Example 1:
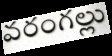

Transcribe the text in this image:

వరంగల్లు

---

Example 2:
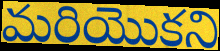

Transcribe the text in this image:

మరియొకని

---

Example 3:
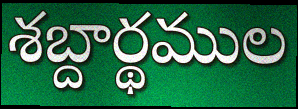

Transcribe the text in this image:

శబ్దార్థముల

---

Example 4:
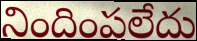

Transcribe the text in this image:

నిందింపలేదు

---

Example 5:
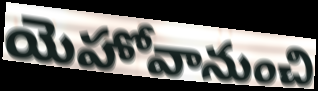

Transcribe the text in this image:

యెహోవానుంచి